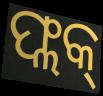
ଫ୍ଲକ୍